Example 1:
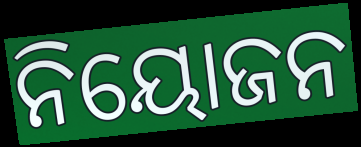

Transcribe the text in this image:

ନିୟୋଜନ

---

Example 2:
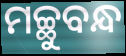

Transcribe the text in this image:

ମଚ୍ଛୁବନ୍ଧ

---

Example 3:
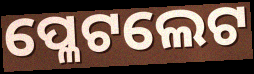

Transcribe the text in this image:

ପ୍ଳେଟଲେଟ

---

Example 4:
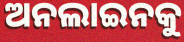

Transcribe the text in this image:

ଅନଲାଇନକୁ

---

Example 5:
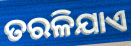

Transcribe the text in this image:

ତରଳିଯାଏ